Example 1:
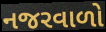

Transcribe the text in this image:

નજરવાળો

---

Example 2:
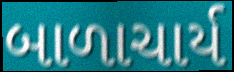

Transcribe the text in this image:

બાળાચાર્ય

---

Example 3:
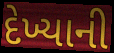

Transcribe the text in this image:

દેખ્યાની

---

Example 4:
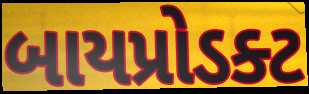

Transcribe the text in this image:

બાયપ્રોડક્ટ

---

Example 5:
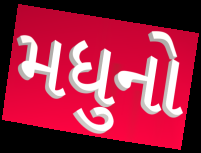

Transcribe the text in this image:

મધુનો